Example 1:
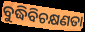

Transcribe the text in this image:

ବୁଦ୍ଧିବିଚକ୍ଷଣତା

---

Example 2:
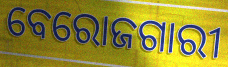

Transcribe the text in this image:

ବେରୋଜଗାରୀ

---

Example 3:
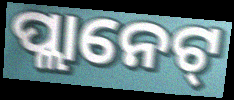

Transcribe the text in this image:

ପ୍ଲାନେଟ୍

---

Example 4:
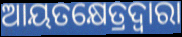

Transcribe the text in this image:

ଆୟତକ୍ଷେତ୍ରଦ୍ଵାରା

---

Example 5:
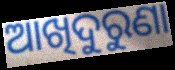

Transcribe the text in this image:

ଆଖିଦୁରୁଣା